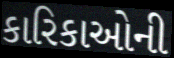
કારિકાઓની